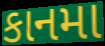
કાનમા